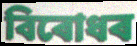
বিৰোধৰ